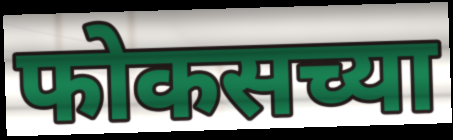
फोकसच्या